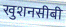
खुशनसीबी